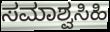
ಸಮಾಶ್ವಸಿಹಿ